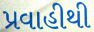
પ્રવાહીથી